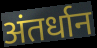
अंतर्धान